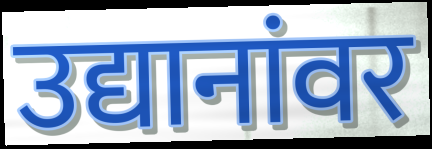
उद्यानांवर